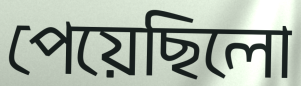
পেয়েছিলো